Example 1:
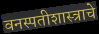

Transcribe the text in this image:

वनस्पतीशास्त्राचे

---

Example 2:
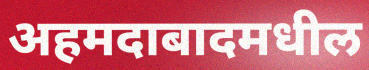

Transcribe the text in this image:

अहमदाबादमधील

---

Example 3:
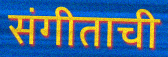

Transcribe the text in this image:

संगीताची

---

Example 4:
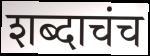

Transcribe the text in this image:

शब्दाचंच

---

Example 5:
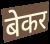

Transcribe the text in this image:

बेकर